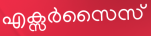
എക്സർസൈസ്